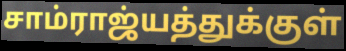
சாம்ராஜ்யத்துக்குள்